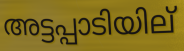
അട്ടപ്പാടിയില്